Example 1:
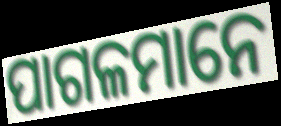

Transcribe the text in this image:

ପାଗଳମାନେ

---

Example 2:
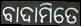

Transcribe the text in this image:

ବାଦାମିତେ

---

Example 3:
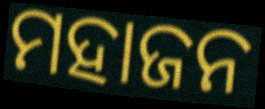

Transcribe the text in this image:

ମହାଜନ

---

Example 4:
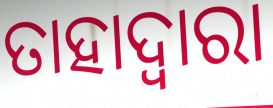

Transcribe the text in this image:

ତାହାଦ୍ଵାରା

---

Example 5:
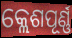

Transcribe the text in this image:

କ୍ଲେଶପୂର୍ଣ୍ଣ